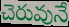
చెరువునే